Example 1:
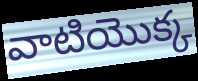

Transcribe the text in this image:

వాటియొక్క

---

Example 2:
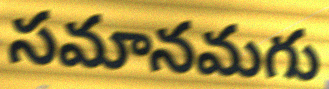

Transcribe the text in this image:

సమానమగు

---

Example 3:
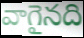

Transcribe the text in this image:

వాగైనది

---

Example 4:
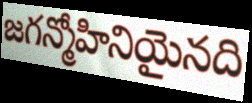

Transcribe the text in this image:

జగన్మోహినియైనది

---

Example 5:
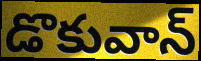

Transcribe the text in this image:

డొకువాన్